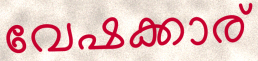
വേഷക്കാര്